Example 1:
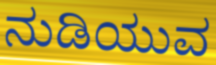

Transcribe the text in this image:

ನುಡಿಯುವ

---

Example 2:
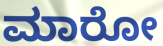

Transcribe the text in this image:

ಮಾರೋ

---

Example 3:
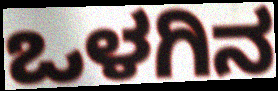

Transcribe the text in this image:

ಒಳಗಿನ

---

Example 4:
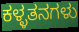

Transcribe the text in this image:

ಕಳ್ಳತನಗಳು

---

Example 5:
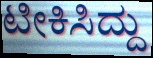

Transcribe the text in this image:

ಟೀಕಿಸಿದ್ದು